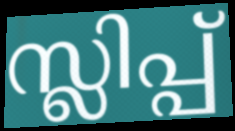
സ്ലിപ്പ്